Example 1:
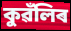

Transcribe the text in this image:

কুৱঁলিৰ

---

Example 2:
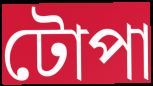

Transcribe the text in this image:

টোপা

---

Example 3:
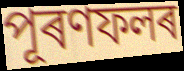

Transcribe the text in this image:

পূৰণফলৰ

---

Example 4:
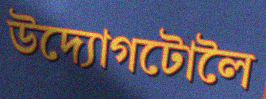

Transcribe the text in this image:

উদ্যোগটোলৈ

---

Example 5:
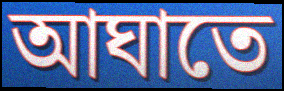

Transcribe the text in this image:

আঘাতে